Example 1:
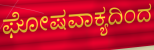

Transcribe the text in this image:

ಘೋಷವಾಕ್ಯದಿಂದ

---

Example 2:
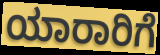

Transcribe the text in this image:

ಯಾರಾರಿಗೆ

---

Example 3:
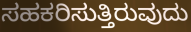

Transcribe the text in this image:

ಸಹಕರಿಸುತ್ತಿರುವುದು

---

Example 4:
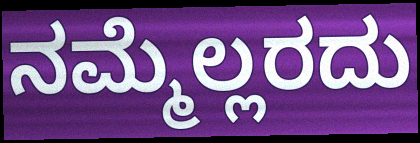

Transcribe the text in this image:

ನಮ್ಮೆಲ್ಲರದು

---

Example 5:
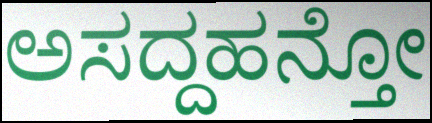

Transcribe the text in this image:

ಅಸದ್ದಹನ್ತೋ